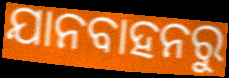
ଯାନବାହନରୁ